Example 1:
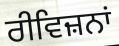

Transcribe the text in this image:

ਰੀਵਿਜ਼ਨਾਂ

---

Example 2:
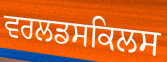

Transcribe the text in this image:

ਵਰਲਡਸਕਿਲਸ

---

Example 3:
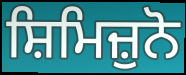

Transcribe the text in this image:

ਸ਼ਿਮਿਜ਼ੁਨੋ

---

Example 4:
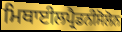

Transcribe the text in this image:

ਮਿਥਾਈਲਪ੍ਰੈਡਨੀਸੋਲੋਨ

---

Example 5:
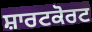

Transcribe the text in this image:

ਸ਼ਾਰਟਕੋਰਟ